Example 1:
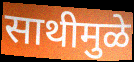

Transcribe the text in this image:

साथीमुळे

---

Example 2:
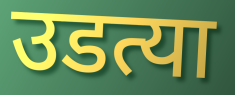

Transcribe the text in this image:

उडत्या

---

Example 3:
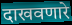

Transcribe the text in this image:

दाखवणारे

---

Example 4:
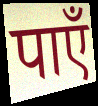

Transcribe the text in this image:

पाएँ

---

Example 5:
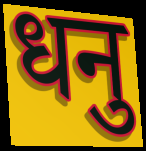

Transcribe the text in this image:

धनु